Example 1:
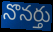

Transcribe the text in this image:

నొనర్తు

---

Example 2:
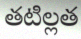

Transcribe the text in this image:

తటిల్లత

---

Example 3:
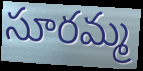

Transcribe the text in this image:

సూరమ్మ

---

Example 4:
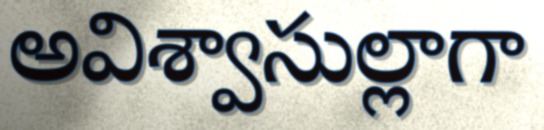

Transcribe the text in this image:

అవిశ్వాసుల్లాగా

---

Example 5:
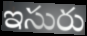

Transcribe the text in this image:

ఇసురు